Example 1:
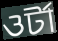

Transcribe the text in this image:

ওর্টা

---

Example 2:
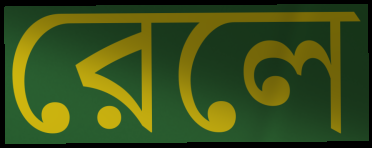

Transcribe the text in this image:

রেলে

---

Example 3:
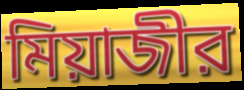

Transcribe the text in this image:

মিয়াজীর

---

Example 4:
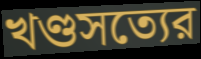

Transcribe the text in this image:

খণ্ডসত্যের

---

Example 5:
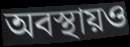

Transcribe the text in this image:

অবস্থায়ও